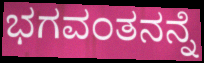
ಭಗವಂತನನ್ನೆ